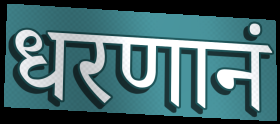
धरणानं